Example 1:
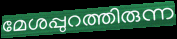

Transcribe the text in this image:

മേശപ്പുറത്തിരുന്ന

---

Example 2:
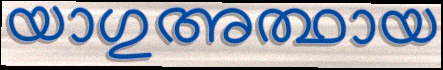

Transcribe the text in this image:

യാഗുഅത്ഥായ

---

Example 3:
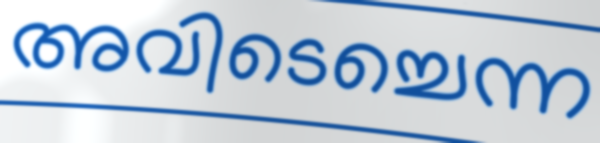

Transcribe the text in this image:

അവിടെച്ചെന്ന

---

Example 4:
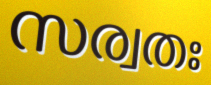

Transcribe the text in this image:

സര്വതഃ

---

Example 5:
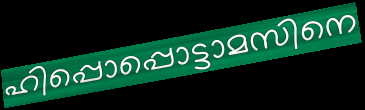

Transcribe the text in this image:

ഹിപ്പൊപ്പൊട്ടാമസിനെ